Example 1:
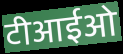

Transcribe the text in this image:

टीआईओ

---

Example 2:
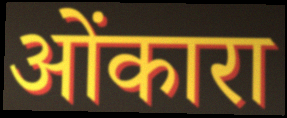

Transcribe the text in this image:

ओंकारा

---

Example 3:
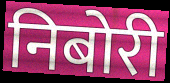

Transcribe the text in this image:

निबोरी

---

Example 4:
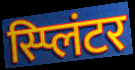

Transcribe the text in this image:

स्प्लिंटर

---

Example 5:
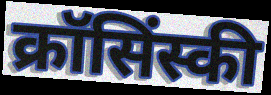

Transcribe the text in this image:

क्रॉसिंस्की